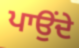
ਪਾਉਂਦੇ